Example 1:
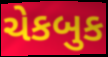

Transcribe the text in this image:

ચેકબુક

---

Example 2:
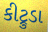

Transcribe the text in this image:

કીટ્રુડા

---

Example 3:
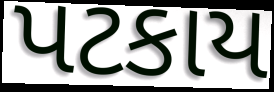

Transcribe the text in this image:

પટકાય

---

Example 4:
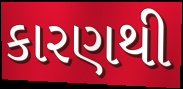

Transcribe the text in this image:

કારણથી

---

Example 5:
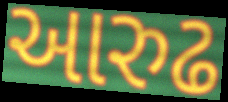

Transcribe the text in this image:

આરુઢ